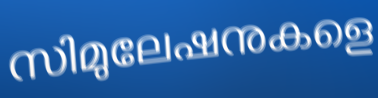
സിമുലേഷനുകളെ